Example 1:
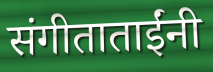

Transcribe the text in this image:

संगीताताईंनी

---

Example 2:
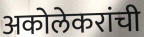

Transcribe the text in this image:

अकोलेकरांची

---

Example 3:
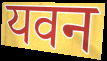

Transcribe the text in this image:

यवन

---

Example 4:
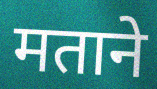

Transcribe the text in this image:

मताने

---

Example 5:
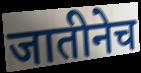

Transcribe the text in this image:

जातीनेच